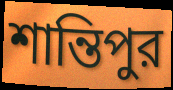
শান্তিপুর